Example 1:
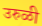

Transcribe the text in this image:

उरुळी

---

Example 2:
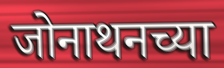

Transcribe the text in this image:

जोनाथनच्या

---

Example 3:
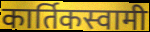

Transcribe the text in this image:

कार्तिकस्वामी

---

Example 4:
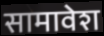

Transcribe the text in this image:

सामावेश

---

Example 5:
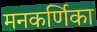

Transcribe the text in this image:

मनकर्णिका